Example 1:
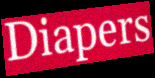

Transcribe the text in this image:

Diapers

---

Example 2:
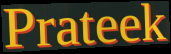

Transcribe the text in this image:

Prateek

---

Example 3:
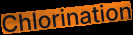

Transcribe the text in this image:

Chlorination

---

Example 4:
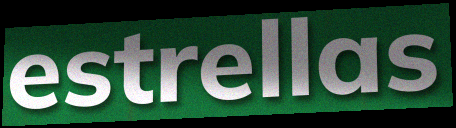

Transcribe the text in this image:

estrellas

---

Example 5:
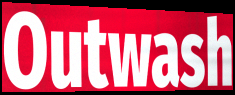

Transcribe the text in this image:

Outwash